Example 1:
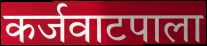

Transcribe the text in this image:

कर्जवाटपाला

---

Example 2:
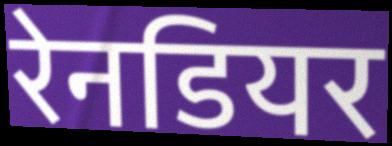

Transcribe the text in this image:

रेनडियर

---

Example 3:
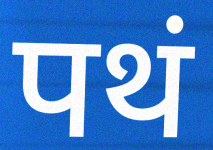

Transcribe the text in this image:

पथं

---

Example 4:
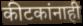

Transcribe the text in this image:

कीटकांनाही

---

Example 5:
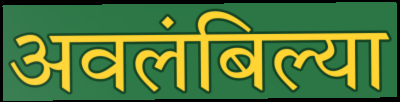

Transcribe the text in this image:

अवलंबिल्या